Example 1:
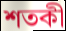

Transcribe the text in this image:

শতকী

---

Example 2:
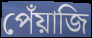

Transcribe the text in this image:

পেঁয়াজি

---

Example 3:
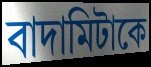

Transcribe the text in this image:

বাদামিটাকে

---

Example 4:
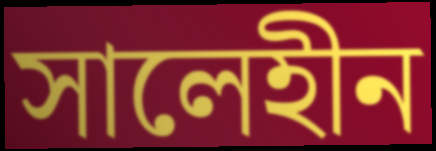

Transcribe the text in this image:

সালেহীন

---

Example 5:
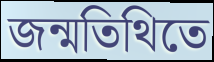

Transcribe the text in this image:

জন্মতিথিতে